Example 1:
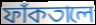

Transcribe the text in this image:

ফাঁকতালে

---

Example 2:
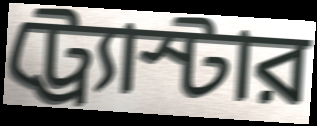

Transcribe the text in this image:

ট্র্যোস্টার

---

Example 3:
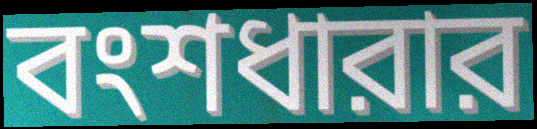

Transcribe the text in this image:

বংশধারার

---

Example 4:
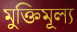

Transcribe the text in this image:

মুক্তিমূল্য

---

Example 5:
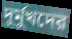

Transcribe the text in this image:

দুর্মুখদের